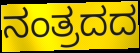
ನಂತ್ರದದ